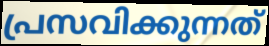
പ്രസവിക്കുന്നത്